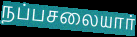
நப்பசலையார்